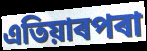
এতিয়াৰপৰা